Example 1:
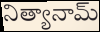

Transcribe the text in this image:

నిత్యానామ్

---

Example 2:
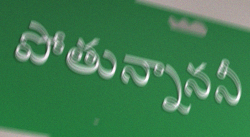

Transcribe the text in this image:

పోతున్నాననీ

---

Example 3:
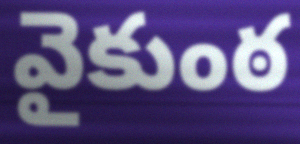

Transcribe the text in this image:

వైకుంఠ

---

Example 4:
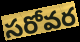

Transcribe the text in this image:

సరోవర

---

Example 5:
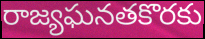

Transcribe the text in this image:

రాజ్యఘనతకొరకు